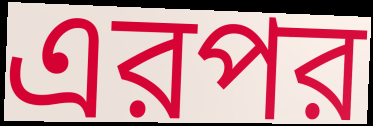
এরপর